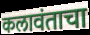
कलावंताचा